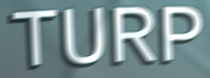
TURP